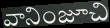
వానింజూచి